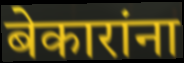
बेकारांना